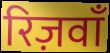
रिज़वाँ